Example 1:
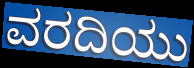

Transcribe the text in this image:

ವರದಿಯು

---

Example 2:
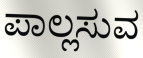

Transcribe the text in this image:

ಪಾಲ್ಲಸುವ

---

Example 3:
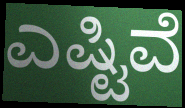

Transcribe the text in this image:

ಎಷ್ಟಿವೆ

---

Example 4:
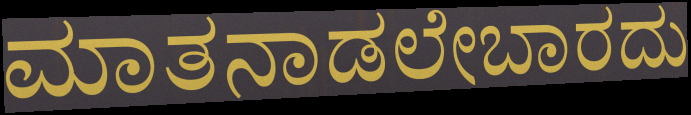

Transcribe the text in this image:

ಮಾತನಾಡಲೇಬಾರದು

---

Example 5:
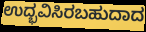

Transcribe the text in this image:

ಉದ್ಭವಿಸಿರಬಹುದಾದ